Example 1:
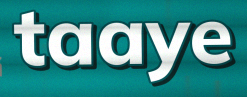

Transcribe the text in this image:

taaye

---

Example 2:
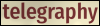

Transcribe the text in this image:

telegraphy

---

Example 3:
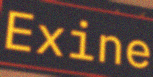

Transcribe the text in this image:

Exine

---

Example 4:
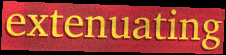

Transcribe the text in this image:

extenuating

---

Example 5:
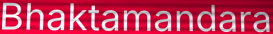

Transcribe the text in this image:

Bhaktamandara